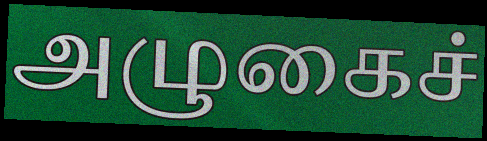
அழுகைச்